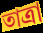
তাত্রা